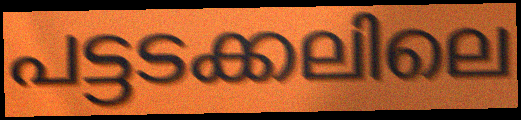
പട്ടടക്കലിലെ